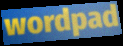
wordpad